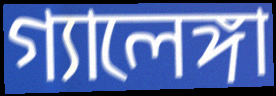
গ্যালেঙ্গা